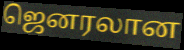
ஜெனரலான